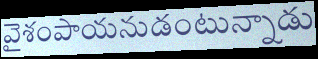
వైశంపాయనుడంటున్నాడు